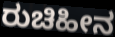
ರುಚಿಹೀನ